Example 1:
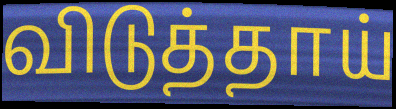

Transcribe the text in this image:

விடுத்தாய்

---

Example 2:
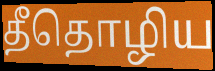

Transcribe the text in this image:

தீதொழிய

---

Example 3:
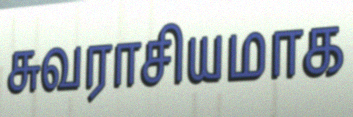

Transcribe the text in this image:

சுவராசியமாக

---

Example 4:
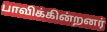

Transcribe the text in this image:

பாவிக்கின்றனர்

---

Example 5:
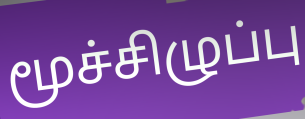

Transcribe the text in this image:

மூச்சிழுப்பு